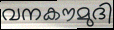
വനകൗമുദി